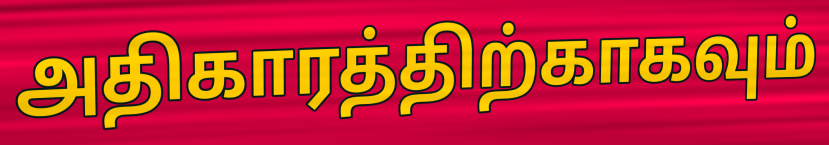
அதிகாரத்திற்காகவும்